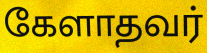
கேளாதவர்